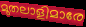
മുതലാളിമാരേ